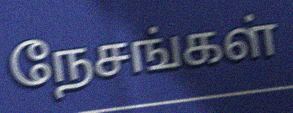
நேசங்கள்